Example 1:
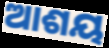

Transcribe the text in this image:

ଆଶୟ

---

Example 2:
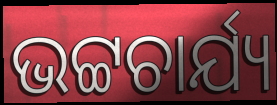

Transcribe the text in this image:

ଭଟ୍ଟଚାର୍ଯ୍ୟ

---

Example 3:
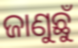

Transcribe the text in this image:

ଜାଣୁଛୁଁ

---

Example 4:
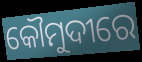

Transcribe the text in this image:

କୌମୁଦୀରେ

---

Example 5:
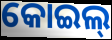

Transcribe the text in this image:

କୋଇଲ୍